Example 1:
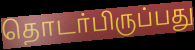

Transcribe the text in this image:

தொடர்பிருப்பது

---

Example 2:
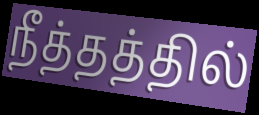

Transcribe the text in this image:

நீத்தத்தில்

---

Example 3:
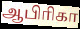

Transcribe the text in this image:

ஆபிரிகா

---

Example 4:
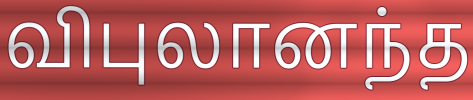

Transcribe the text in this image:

விபுலானந்த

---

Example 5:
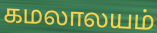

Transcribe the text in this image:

கமலாலயம்